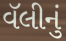
વૅલીનું